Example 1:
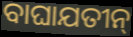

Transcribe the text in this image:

ବାଘାଯତୀନ୍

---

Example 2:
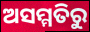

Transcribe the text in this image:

ଅସମ୍ମତିରୁ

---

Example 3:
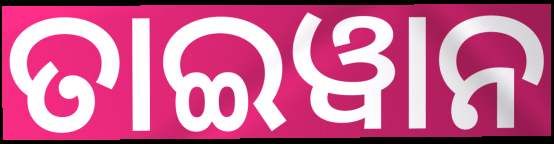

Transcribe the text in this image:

ତାଇୱାନ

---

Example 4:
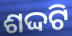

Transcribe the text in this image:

ଶଦ୍ଦଟି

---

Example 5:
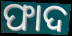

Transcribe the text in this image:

ଫାଦ